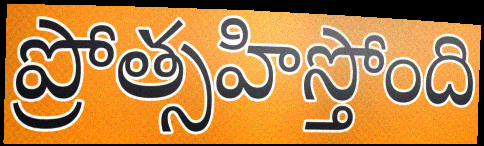
ప్రోత్సహిస్తోంది